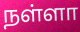
நள்ளா